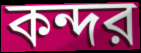
কন্দর